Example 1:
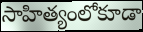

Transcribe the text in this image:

సాహిత్యంలోకూడా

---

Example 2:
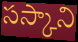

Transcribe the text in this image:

సస్కాని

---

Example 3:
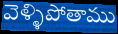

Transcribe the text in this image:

వెళ్ళిపోతాము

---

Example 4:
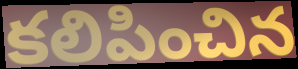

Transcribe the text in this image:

కలిపించిన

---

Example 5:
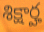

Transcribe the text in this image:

శిక్షార్హ